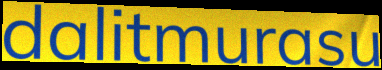
dalitmurasu